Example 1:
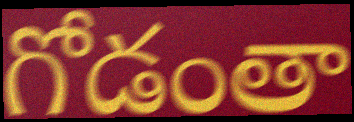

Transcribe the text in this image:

గోడంతా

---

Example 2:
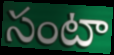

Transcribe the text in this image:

సంటా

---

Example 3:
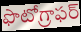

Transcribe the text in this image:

ఫొటోగ్రాఫర్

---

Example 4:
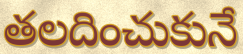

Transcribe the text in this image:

తలదించుకునే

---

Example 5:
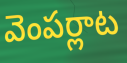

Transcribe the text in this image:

వెంపర్లాట